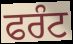
ਫਰੰਟ